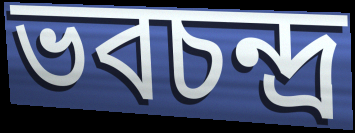
ভবচন্দ্র